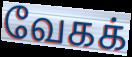
வேகக்